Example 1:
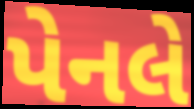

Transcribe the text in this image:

પેનલે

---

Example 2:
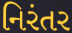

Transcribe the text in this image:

નિરંતર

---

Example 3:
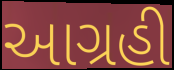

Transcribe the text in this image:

આગ્રહી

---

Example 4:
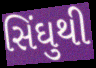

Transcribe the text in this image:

સિંઘુથી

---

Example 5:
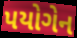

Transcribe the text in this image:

પયોગેન